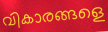
വികാരങ്ങളെ